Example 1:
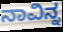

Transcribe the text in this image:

ನಾವಿನ್ನ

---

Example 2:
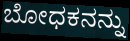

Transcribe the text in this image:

ಬೋಧಕನನ್ನು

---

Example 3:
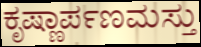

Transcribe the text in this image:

ಕೃಷ್ಣಾರ್ಪಣಮಸ್ತು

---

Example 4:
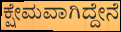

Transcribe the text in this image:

ಕ್ಷೇಮವಾಗಿದ್ದೇನೆ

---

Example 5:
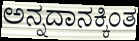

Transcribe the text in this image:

ಅನ್ನದಾನಕ್ಕಿಂತ